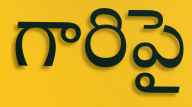
గారిపై